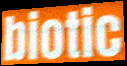
biotic